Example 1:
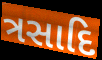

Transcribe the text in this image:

ત્રસાદિ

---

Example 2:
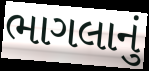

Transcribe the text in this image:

ભાગલાનું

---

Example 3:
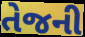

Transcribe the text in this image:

તેજની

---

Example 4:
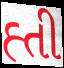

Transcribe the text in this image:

હ્તી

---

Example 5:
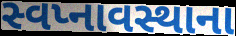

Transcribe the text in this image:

સ્વપ્નાવસ્થાના